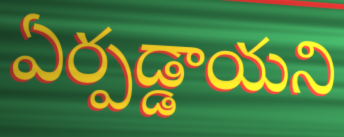
ఏర్పడ్డాయని